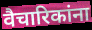
वैचारिकांना